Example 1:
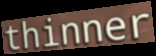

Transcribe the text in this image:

thinner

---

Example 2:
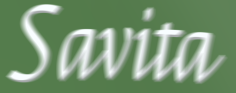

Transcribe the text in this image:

Savita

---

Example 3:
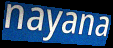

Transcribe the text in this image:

nayana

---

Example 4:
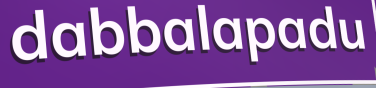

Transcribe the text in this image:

dabbalapadu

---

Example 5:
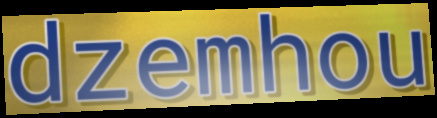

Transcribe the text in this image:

dzemhou